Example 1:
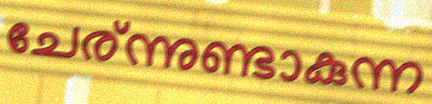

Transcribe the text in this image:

ചേര്ന്നുണ്ടാകുന്ന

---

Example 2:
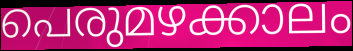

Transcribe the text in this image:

പെരുമഴക്കാലം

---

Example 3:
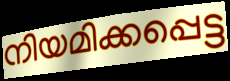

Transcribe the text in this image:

നിയമിക്കപ്പെട്ട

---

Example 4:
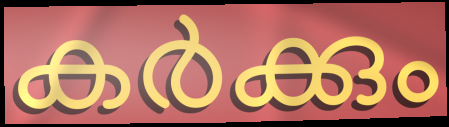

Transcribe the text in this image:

കർക്കും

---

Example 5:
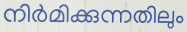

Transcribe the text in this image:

നിർമിക്കുന്നതിലും